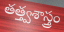
తత్త్వశాస్త్రం